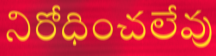
నిరోధించలేవు